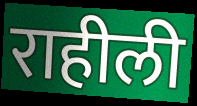
राहीली